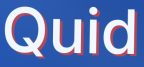
Quid